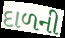
દાળની